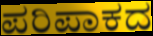
ಪರಿಪಾಕದ